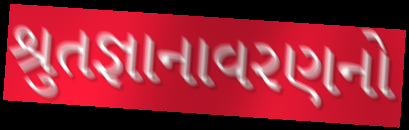
શ્રુતજ્ઞાનાવરણનો